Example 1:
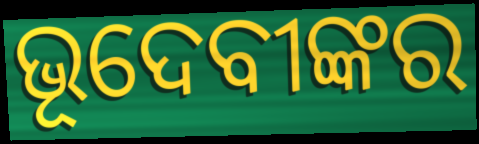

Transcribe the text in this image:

ଭୂଦେବୀଙ୍କର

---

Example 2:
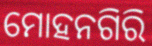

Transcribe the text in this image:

ମୋହନଗିରି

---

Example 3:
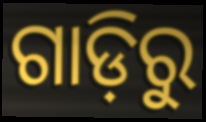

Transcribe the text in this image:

ଗାଡ଼ିରୁ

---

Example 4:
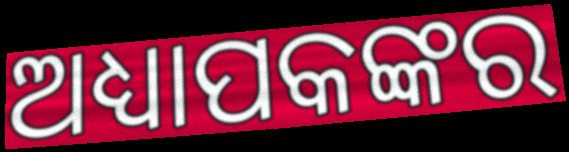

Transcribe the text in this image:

ଅଧ୍ୟାପକଙ୍କର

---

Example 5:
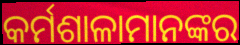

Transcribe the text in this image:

କର୍ମଶାଳାମାନଙ୍କର